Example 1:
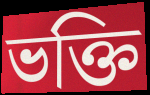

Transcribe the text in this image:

ভক্তি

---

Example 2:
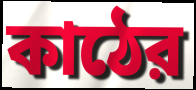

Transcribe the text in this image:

কাঠের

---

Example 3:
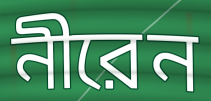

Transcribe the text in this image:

নীরেন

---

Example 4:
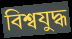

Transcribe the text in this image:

বিশ্বযুদ্ধ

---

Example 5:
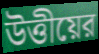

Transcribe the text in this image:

উত্তীয়ের